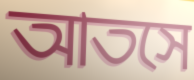
আতসে